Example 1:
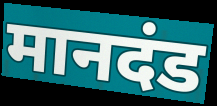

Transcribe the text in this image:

मानदंड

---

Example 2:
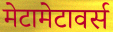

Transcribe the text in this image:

मेटामेटावर्स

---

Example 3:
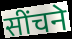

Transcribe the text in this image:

सींचने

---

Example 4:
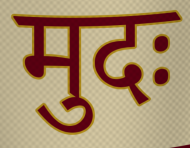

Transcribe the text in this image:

मुदः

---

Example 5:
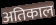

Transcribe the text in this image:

अतिकाल